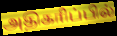
அதிகரிப்பில்